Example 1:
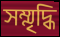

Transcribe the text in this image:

সম্মৃদ্ধি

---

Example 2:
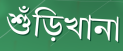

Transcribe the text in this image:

শুঁড়িখানা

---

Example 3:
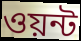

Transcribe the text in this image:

ওয়ন্ট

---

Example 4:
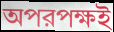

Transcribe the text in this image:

অপরপক্ষই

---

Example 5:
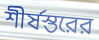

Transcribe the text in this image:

শীর্ষস্তরের